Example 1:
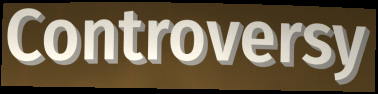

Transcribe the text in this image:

Controversy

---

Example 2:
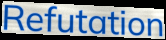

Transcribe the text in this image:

Refutation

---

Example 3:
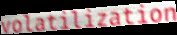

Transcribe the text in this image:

volatilization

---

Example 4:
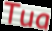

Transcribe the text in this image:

Tua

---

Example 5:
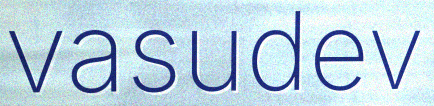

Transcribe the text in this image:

vasudev